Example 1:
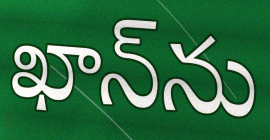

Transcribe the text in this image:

ఖాన్‌ను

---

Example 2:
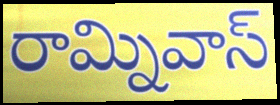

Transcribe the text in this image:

రామ్నివాస్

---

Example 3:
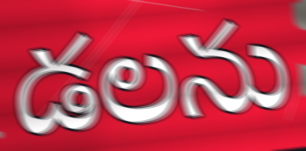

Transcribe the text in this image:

డలను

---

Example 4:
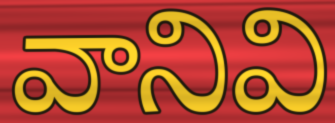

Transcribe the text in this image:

వానివి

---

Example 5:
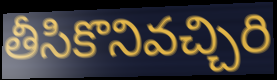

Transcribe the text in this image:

తీసికొనివచ్చిరి